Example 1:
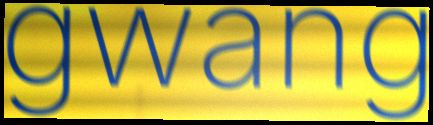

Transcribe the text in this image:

gwang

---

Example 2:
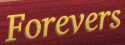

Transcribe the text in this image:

Forevers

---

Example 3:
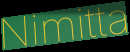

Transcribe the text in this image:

Nimitta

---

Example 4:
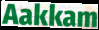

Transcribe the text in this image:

Aakkam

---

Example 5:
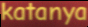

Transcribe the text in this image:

katanya